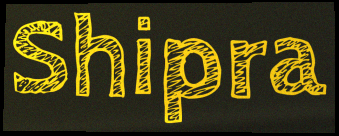
Shipra